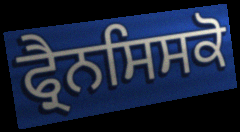
ਫ੍ਰੈਨਸਿਸਕੋ